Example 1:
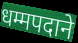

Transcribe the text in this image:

धम्मपदाने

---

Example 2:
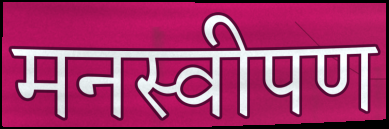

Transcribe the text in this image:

मनस्वीपण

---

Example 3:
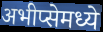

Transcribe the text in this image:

अभीप्सेमध्ये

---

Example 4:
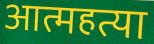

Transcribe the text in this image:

आत्महत्या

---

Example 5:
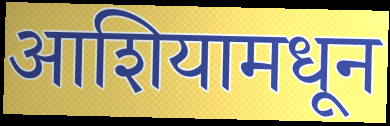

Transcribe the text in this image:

आशियामधून